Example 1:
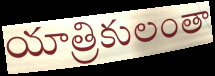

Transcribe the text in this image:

యాత్రికులంతా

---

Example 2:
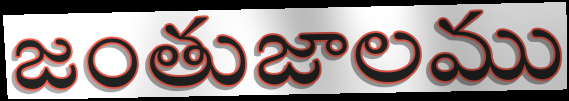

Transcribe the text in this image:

జంతుజాలము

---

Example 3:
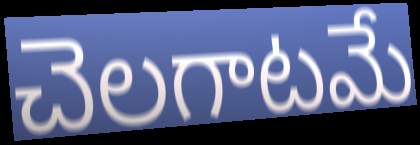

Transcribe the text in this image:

చెలగాటమే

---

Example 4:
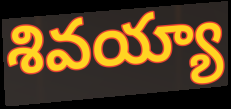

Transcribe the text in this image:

శివయ్యా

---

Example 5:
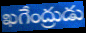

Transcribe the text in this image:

ఖగేంద్రుడు